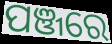
ପଞ୍ଜରେ